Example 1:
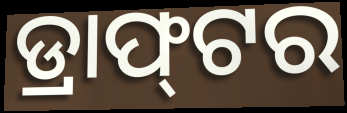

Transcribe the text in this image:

ଡ୍ରାଫ୍‌ଟର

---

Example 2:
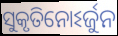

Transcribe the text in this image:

ସୁକୃତିନୋଽର୍ଜୁନ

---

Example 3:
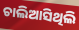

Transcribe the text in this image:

ଚାଲିଆସିଥିଲି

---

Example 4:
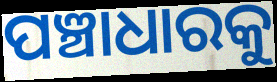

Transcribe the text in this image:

ପଞ୍ଚାଧାରକୁ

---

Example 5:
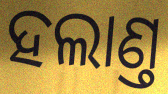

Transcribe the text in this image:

ହଲାଣ୍ତ